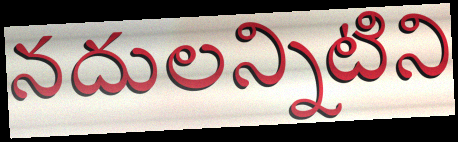
నదులన్నిటిని